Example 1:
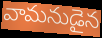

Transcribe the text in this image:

వామనుడైన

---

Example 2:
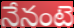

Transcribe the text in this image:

నేనంటె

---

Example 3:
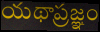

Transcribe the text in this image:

యథాప్రజ్ఞం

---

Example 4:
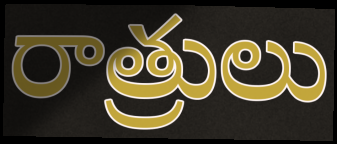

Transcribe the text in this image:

రాత్రులు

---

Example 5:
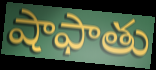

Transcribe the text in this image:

షాఫాతు